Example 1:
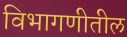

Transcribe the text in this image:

विभागणीतील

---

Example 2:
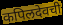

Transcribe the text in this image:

कपिलदेवची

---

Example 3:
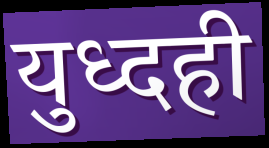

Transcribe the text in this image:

युध्दही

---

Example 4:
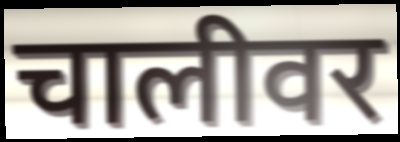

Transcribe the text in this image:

चालीवर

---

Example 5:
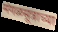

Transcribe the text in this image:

मंगळसूत्राच्या